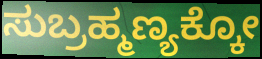
ಸುಬ್ರಹ್ಮಣ್ಯಕ್ಕೋ